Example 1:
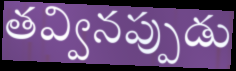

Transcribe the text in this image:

తవ్వినప్పుడు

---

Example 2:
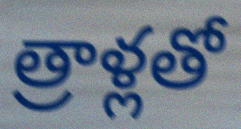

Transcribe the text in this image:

త్రాళ్లతో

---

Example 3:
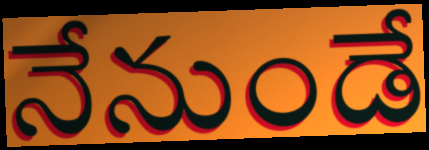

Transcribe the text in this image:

నేనుండే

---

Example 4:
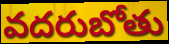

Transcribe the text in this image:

వదరుబోతు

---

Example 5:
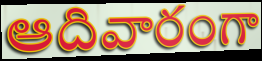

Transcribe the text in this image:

ఆదివారంగా